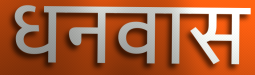
धनवास